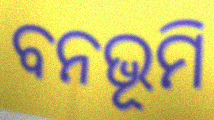
ବନଭୂମି